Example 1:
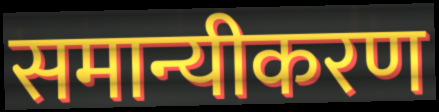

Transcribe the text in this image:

समान्यीकरण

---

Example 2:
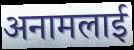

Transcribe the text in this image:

अनामलाई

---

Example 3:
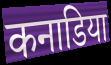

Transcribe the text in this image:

कनाडिया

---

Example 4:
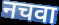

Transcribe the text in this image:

नचवा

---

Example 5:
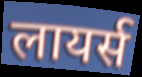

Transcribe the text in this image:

लायर्स